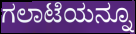
ಗಲಾಟೆಯನ್ನೂ